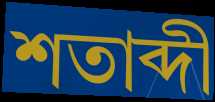
শতাব্দী